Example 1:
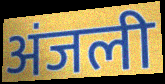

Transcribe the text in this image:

अंजली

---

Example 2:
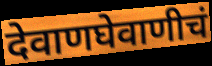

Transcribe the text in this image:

देवाणघेवाणीचं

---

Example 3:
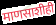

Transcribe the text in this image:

माणसाशीही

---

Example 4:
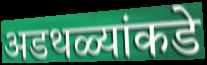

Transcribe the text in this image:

अडथळ्यांकडे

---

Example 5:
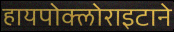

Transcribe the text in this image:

हायपोक्लोराइटाने